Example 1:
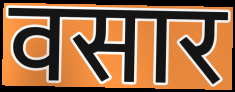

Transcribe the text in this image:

वसार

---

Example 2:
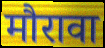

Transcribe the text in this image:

मौरावा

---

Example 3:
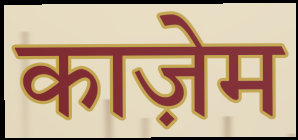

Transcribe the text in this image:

काज़ेम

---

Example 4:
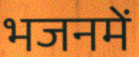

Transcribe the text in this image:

भजनमें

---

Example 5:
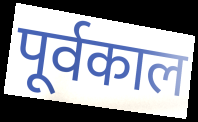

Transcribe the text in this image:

पूर्वकाल